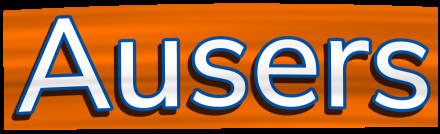
Ausers